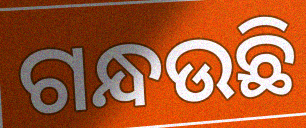
ଗନ୍ଧଉଛି